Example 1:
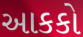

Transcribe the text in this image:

આકકો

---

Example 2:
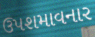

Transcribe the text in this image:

ઉપશમાવનાર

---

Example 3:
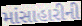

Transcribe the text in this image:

માંસાહારીની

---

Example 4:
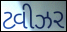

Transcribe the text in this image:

ટ્વીઝર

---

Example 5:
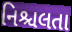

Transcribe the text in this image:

નિશ્ચલતા